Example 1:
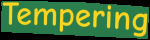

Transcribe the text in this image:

Tempering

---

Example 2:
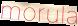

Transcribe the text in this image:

morula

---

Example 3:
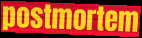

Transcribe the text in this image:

postmortem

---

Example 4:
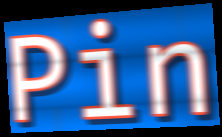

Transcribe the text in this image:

Pin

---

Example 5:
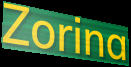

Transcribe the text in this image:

Zorina